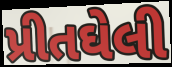
પ્રીતઘેલી